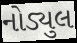
નોડ્યુલ